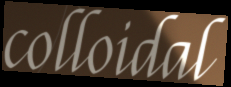
colloidal